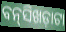
ବନ୍‌ସିଖଡ଼ାଟା